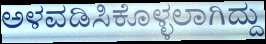
ಅಳವಡಿಸಿಕೊಳ್ಳಲಾಗಿದ್ದು